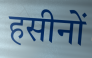
हसीनों